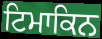
ਟਿਮਾਕਿਨ